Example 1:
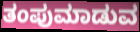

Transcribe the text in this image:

ತಂಪುಮಾಡುವ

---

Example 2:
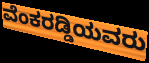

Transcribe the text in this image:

ವೆಂಕರಡ್ಡಿಯವರು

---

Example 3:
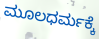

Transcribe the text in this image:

ಮೂಲಧರ್ಮಕ್ಕೆ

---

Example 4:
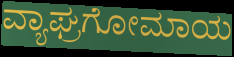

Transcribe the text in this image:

ವ್ಯಾಘ್ರಗೋಮಾಯ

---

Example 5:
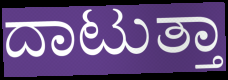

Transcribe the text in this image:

ದಾಟುತ್ತಾ